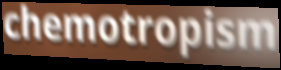
chemotropism